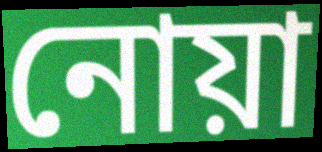
নোয়া